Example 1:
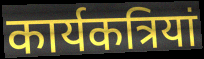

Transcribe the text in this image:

कार्यकत्रियां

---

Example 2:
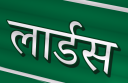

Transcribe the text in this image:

लार्डस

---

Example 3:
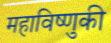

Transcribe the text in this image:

महाविष्णुकी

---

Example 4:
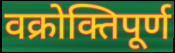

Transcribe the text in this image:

वक्रोक्तिपूर्ण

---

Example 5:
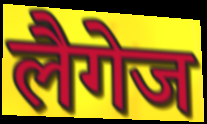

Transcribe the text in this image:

लैगेज